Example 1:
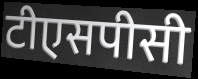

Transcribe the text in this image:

टीएसपीसी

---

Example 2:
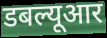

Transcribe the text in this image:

डबल्यूआर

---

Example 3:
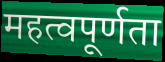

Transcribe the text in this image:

महत्वपूर्णता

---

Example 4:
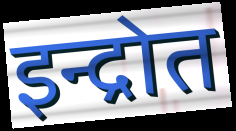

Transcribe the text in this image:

इन्द्रोत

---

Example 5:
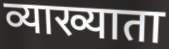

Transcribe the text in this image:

व्याख्याता